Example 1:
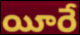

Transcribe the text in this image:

యీరే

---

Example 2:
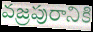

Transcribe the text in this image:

వజ్రపురానికి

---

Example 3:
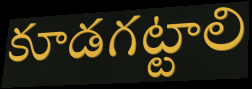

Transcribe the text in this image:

కూడగట్టాలి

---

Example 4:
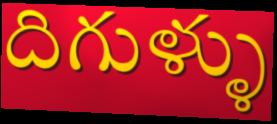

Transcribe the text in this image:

దిగుళ్ళు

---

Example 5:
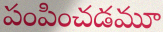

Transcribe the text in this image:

పంపించడమూ